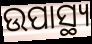
ଉପାସ୍ଥ୍ୟ